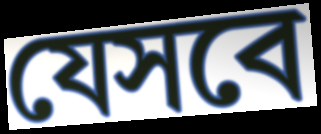
যেসবে